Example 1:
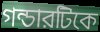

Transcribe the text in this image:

গন্ডারটিকে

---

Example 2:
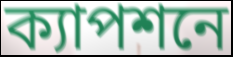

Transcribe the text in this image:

ক্যাপশনে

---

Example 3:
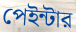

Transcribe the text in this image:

পেইন্টার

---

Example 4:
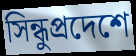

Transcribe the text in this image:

সিন্ধুপ্রদেশে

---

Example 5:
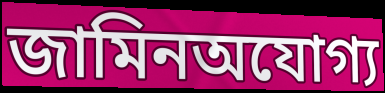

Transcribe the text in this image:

জামিনঅযোগ্য